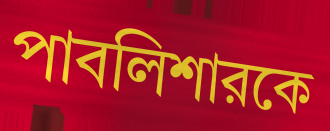
পাবলিশারকে